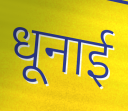
धूनाई